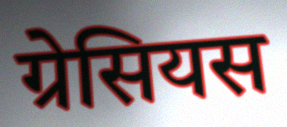
ग्रेसियस